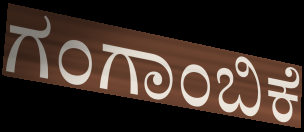
ಗಂಗಾಂಬಿಕೆ